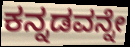
ಕನ್ನಡವನ್ನೇ